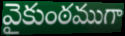
వైకుంఠముగా